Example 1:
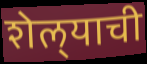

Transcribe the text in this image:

शेल्याची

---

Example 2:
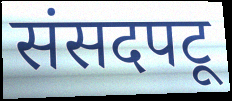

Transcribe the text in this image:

संसदपटू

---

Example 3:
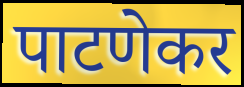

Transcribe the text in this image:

पाटणेकर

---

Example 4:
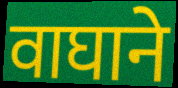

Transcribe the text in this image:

वाघाने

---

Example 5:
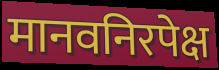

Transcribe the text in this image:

मानवनिरपेक्ष